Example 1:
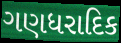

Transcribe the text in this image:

ગણધરાદિક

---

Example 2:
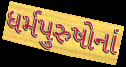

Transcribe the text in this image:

ધર્મપુરુષોનાં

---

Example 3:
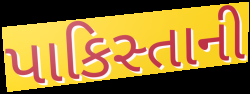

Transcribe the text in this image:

પાકિસ્તાની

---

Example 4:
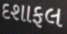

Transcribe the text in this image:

દશાફલ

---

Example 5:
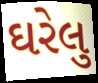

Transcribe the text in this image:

ઘરેલુ